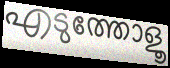
എടുത്തോളൂ